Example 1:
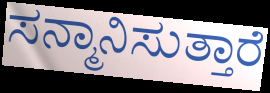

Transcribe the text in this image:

ಸನ್ಮಾನಿಸುತ್ತಾರೆ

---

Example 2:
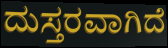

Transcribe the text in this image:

ದುಸ್ತರವಾಗಿದೆ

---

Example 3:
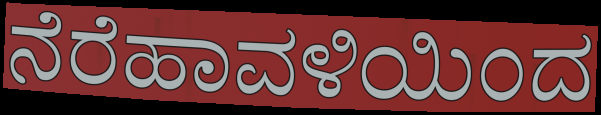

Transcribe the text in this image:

ನೆರೆಹಾವಳಿಯಿಂದ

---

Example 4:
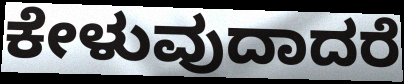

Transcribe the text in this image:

ಕೇಳುವುದಾದರೆ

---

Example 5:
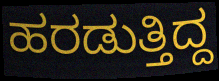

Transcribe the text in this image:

ಹರಡುತ್ತಿದ್ದ